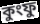
কুংফু